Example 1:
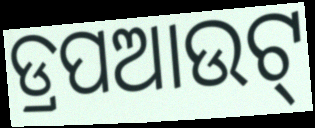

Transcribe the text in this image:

ଡ୍ରପଆଉଟ୍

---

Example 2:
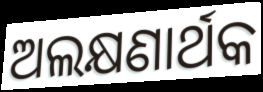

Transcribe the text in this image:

ଅଲକ୍ଷଣାର୍ଥକ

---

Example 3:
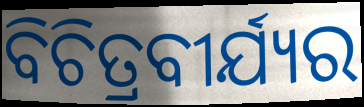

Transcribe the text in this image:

ବିଚିତ୍ରବୀର୍ଯ୍ୟର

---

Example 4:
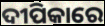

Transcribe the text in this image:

ଦୀପିକାରେ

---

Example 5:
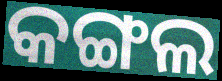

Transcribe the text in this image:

କଙ୍ଗଲ